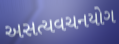
અસત્યવચનયોગ